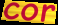
cor